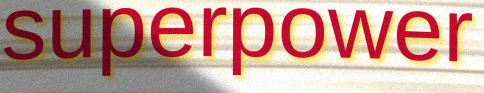
superpower